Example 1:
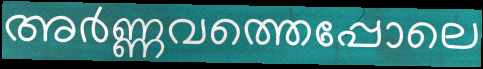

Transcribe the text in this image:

അർണ്ണവത്തെപ്പോലെ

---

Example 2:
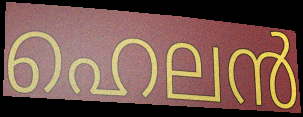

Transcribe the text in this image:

ഹെലൻ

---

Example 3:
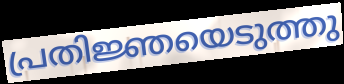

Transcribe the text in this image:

പ്രതിജ്ഞയെടുത്തു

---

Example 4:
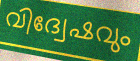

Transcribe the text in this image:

വിദ്വേഷവും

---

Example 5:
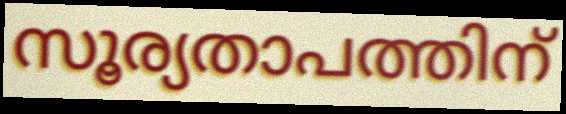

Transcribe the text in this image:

സൂര്യതാപത്തിന്